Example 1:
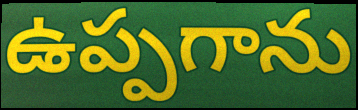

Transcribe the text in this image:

ఉప్పగాను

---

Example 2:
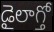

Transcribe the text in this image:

డైలాగ్తో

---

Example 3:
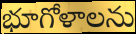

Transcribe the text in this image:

భూగోళాలను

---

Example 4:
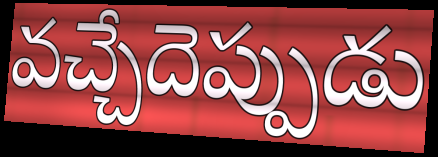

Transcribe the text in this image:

వచ్చేదెప్పుడు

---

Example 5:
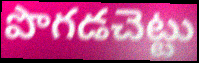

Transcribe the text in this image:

పొగడచెట్టు